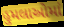
હુમલાઓમાં